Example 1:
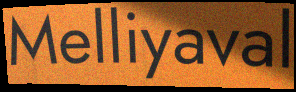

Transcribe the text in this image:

Melliyaval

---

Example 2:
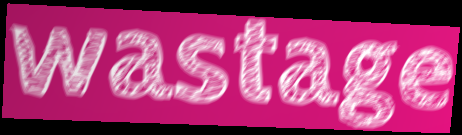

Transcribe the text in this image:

wastage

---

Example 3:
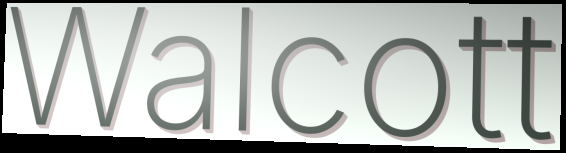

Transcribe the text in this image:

Walcott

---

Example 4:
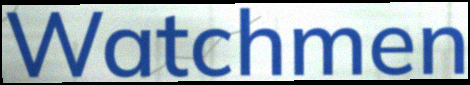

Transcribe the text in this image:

Watchmen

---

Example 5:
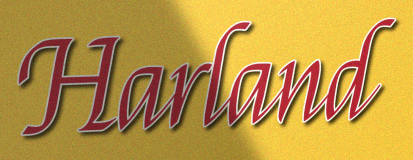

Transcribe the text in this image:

Harland